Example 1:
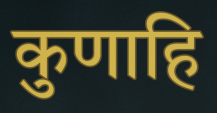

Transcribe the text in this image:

कुणाहि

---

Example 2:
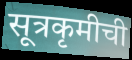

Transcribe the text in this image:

सूत्रकृमीची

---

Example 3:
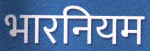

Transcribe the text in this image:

भारनियम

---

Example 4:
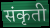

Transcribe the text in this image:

संकृती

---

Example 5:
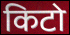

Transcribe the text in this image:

किटो